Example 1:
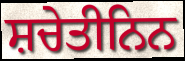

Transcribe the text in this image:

ਸ਼ਚੇਤੀਨਿਨ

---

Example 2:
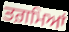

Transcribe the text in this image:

ਤਗ਼ਮਿਆਂ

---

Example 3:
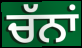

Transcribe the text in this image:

ਚੱਨਾਂ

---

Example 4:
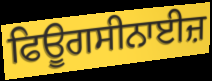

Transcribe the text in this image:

ਫਿਊਗਸੀਨਾਈਜ਼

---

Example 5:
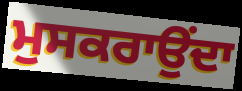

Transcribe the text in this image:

ਮੁਸਕਰਾਉਂਦਾ